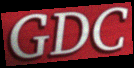
GDC